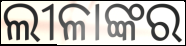
ଲୀଳାଙ୍କର